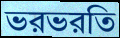
ভরভরতি